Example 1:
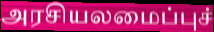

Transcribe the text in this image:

அரசியலமைப்புச்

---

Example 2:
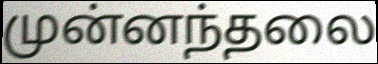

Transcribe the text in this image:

முன்னந்தலை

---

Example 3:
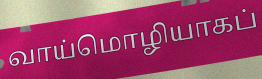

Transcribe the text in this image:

வாய்மொழியாகப்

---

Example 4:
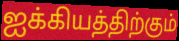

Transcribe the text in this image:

ஐக்கியத்திற்கும்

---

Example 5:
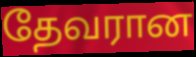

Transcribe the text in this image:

தேவரான